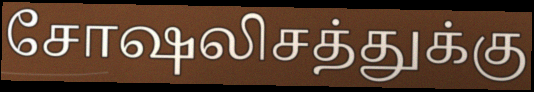
சோஷலிசத்துக்கு